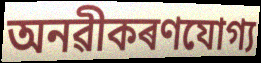
অনৱীকৰণযোগ্য